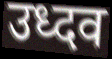
उध्दव